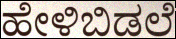
ಹೇಳಿಬಿಡಲೆ